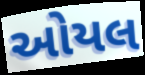
ઓયલ